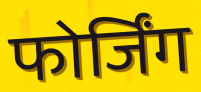
फोर्जिंग